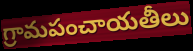
గ్రామపంచాయతీలు